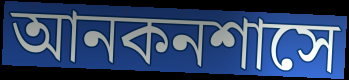
আনকনশাসে